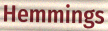
Hemmings